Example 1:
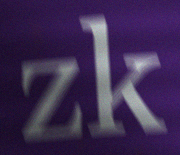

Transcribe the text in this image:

zk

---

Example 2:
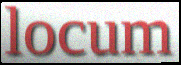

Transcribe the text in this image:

locum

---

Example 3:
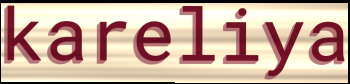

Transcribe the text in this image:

kareliya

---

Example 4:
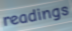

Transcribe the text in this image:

readings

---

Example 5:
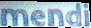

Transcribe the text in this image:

mendi